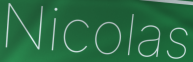
Nicolas